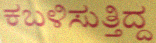
ಕಬಳಿಸುತ್ತಿದ್ದ